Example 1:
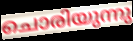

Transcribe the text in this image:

ചൊരിയുന്നു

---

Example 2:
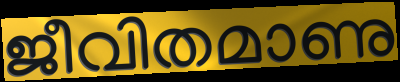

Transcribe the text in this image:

ജീവിതമാണു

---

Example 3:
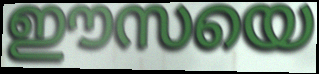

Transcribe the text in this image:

ഈസയെ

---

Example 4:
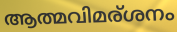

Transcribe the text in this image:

ആത്മവിമര്ശനം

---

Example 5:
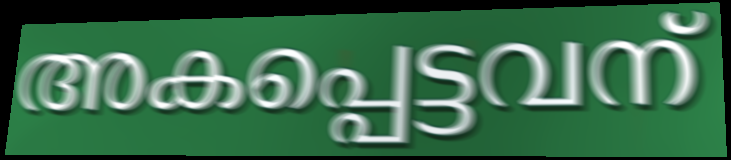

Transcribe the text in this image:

അകപ്പെട്ടവന്